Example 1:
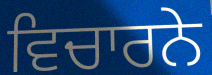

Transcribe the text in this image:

ਵਿਚਾਰਨੇ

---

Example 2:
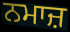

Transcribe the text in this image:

ਨਮਾਜ਼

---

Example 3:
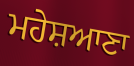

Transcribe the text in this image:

ਮਹੇਸ਼ਆਣਾ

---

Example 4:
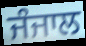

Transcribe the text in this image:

ਜੰਜਾਲ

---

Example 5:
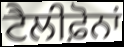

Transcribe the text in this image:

ਟੈਲੀਫ਼ੋਨਾਂ